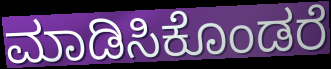
ಮಾಡಿಸಿಕೊಂಡರೆ